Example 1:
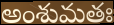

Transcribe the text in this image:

అంశుమతః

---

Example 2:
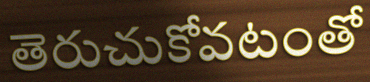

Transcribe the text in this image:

తెరుచుకోవటంతో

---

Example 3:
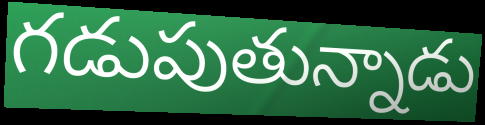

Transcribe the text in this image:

గడుపుతున్నాడు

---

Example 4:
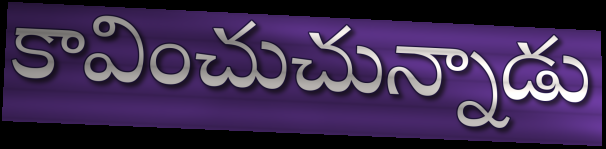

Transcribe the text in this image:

కావించుచున్నాడు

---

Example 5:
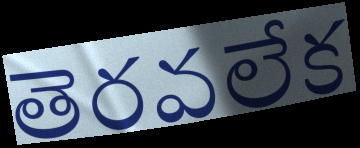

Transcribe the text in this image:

తెరవలేక